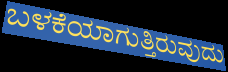
ಬಳಕೆಯಾಗುತ್ತಿರುವುದು